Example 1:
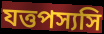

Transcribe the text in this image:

যত্তপস্যসি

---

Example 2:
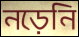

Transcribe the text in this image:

নড়েনি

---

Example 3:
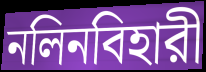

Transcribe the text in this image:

নলিনবিহারী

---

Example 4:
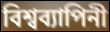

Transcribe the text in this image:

বিশ্বব্যাপিনী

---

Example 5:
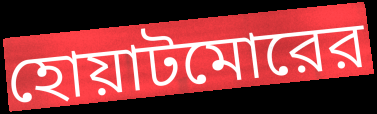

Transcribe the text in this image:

হোয়াটমোরের